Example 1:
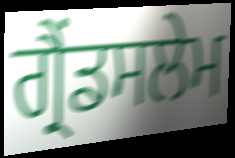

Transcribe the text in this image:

ਗ੍ਰੈਂਡਸਲੇਮ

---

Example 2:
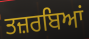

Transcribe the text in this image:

ਤਜ਼ਰਬਿਆਂ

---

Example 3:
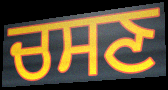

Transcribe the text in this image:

ਚਸਣ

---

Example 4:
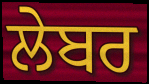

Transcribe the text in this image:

ਲੇਬਰ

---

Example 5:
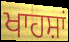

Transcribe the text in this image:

ਖਾਹਸ਼ਾਂ